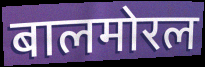
बालमोरल